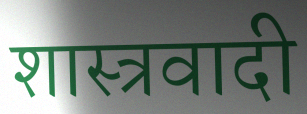
शास्त्रवादी